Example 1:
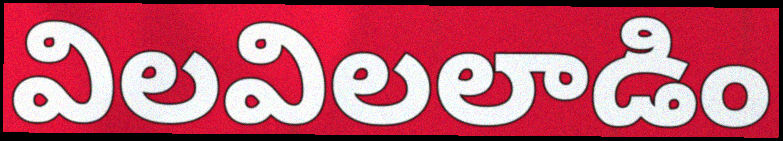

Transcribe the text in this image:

విలవిలలాడిం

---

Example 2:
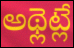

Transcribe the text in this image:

అథ్లెట్లే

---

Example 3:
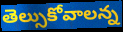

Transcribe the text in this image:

తెల్సుకోవాలన్న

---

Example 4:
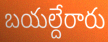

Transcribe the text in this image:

బయల్దేరారు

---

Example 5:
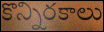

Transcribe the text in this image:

కొన్నిరకాలు